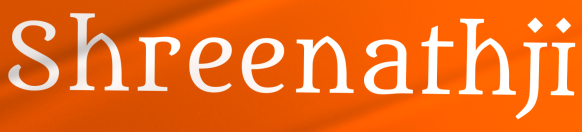
Shreenathji